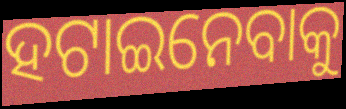
ହଟାଇନେବାକୁ